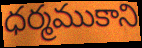
ధర్మముకాని